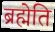
ब्रह्मेति